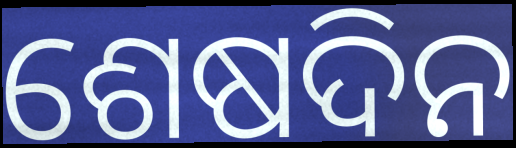
ଶେଷଦିନ